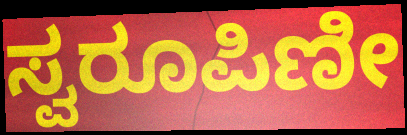
ಸ್ವರೂಪಿಣೀ